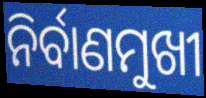
ନିର୍ବାଣମୁଖୀ